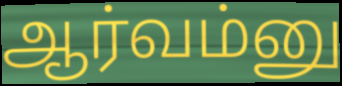
ஆர்வம்னு